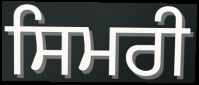
ਸਿਮਰੀ